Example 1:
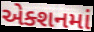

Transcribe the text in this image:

એક્શનમાં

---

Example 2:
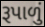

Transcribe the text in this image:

રૂપાળું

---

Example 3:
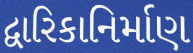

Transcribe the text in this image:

દ્વારિકાનિર્માણ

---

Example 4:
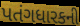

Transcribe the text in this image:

પતંગધારકની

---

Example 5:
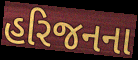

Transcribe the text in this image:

હરિજનના